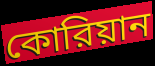
কোরিয়ান